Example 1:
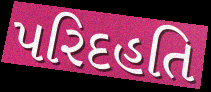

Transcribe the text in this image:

પરિદહતિ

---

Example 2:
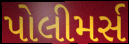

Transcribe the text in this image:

પોલીમર્સ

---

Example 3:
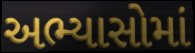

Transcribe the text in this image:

અભ્યાસોમાં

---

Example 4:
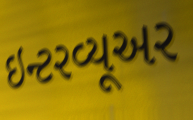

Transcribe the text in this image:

ઇન્ટરવ્યૂઅર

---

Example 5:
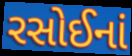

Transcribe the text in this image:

રસોઈનાં